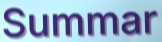
Summar